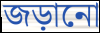
জড়ানো